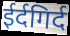
ईर्दगिर्द